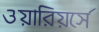
ওয়ারিয়র্সে